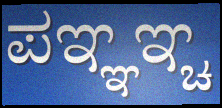
ಪಞ್ಞಞ್ಚ